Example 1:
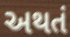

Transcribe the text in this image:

અથતં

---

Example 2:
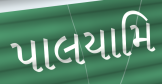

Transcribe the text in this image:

પાલયામિ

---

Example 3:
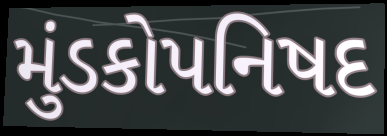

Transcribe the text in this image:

મુંડકોપનિષદ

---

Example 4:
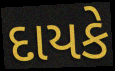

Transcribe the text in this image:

દાયકે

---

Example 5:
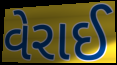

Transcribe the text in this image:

વેરાઈ